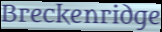
Breckenridge